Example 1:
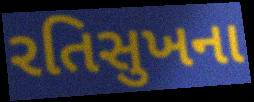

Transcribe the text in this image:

રતિસુખના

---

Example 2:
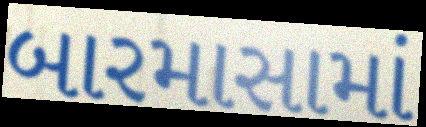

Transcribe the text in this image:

બારમાસામાં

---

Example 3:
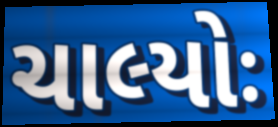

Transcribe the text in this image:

ચાલ્યોઃ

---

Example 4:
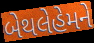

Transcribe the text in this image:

બેથલેહેમને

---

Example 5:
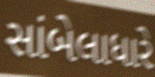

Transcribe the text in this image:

સાંબેલાધારે